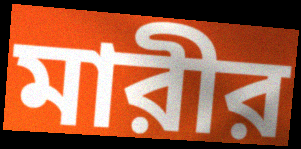
মারীর